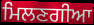
ਮਿਲਣਗੀਆ